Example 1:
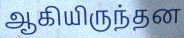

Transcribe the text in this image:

ஆகியிருந்தன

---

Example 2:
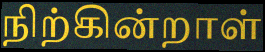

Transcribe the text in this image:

நிற்கின்றாள்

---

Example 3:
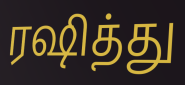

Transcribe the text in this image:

ரஷித்து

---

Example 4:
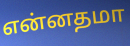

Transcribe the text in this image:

என்னதமா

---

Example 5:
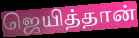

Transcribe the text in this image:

ஜெயித்தான்